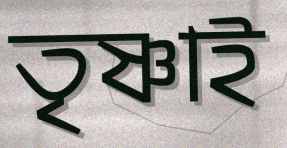
তৃষ্ণাই